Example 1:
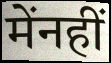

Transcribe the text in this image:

मेंनहीं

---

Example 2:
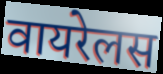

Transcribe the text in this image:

वायरेलस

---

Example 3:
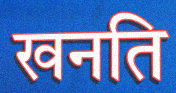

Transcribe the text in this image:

खनति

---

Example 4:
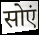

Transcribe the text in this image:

सोएं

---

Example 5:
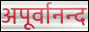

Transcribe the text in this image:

अपूर्वानन्द